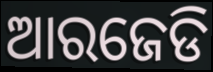
ଆରଜେଡି